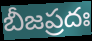
బీజప్రదః